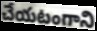
చేయటంగాని